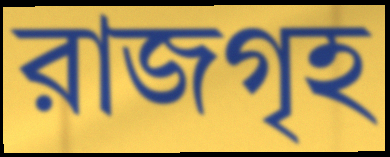
রাজগৃহ